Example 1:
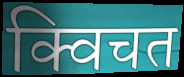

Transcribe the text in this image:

क्विचत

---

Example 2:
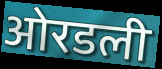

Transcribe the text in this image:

ओरडली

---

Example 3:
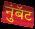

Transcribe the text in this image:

नुंबॅट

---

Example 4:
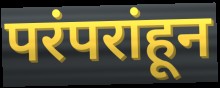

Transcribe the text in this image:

परंपरांहून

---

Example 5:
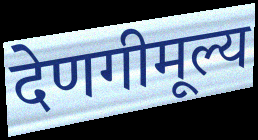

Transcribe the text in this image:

देणगीमूल्य